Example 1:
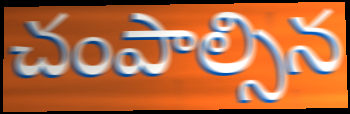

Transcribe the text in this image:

చంపాల్సిన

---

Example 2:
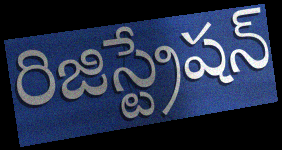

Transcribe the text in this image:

రిజిస్ట్రేషన్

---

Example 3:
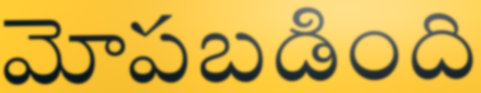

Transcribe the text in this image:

మోపబడింది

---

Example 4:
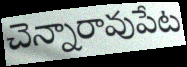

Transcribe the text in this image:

చెన్నారావుపేట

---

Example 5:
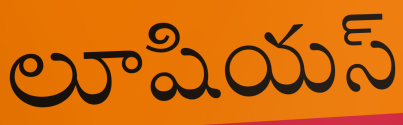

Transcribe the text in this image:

లూషియస్